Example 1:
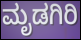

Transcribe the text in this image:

ಮೃಡಗಿರಿ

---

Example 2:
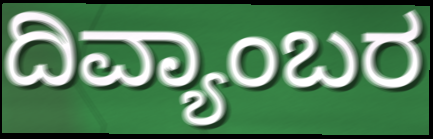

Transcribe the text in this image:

ದಿವ್ಯಾಂಬರ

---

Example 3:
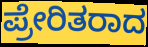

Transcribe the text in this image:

ಪ್ರೇರಿತರಾದ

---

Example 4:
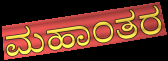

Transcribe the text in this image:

ಮಹಾಂತರ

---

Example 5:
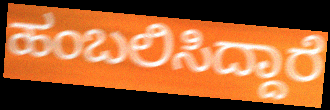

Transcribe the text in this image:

ಹಂಬಲಿಸಿದ್ದಾರೆ